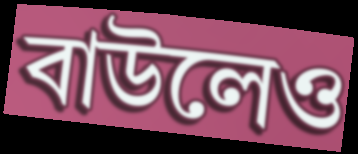
বাউলেও